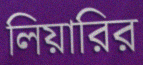
লিয়ারির